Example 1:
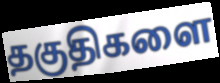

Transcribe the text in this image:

தகுதிகளை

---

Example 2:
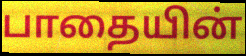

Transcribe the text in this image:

பாதையின்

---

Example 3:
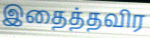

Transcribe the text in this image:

இதைத்தவிர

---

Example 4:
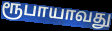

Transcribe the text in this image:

ரூபாயாவது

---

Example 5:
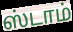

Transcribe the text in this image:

ஸ்டாம்